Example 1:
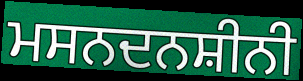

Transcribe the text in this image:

ਮਸਨਦਨਸ਼ੀਨੀ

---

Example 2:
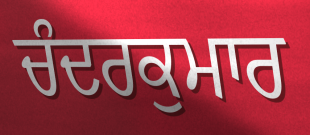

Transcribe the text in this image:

ਚੰਦਰਕੁਮਾਰ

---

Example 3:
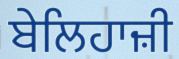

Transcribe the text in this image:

ਬੇਲਿਹਾਜ਼ੀ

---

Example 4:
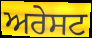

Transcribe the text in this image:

ਅਰੇਸਟ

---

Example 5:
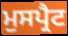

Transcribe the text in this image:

ਮੁਸਪ੍ਰੈਟ